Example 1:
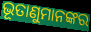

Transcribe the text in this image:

ଭୂତାଣୁମାନଙ୍କର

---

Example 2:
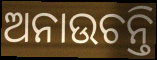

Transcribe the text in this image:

ଅନାଉଚନ୍ତି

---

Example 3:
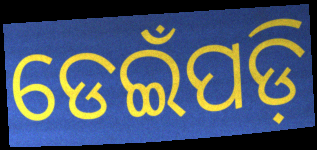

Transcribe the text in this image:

ଡେଇଁପଡ଼ି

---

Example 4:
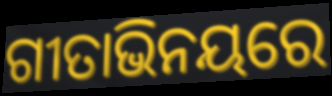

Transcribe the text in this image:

ଗୀତାଭିନୟରେ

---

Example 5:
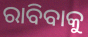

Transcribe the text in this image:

ରାବିବାକୁ